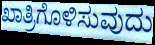
ಖಾತ್ರಿಗೊಳಿಸುವುದು